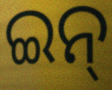
ଇନ୍